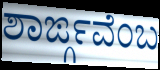
ಶಾರ್ಙ್ಗವೆಂಬ